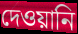
দেওয়ানি